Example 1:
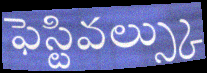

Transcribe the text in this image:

ఫెస్టివల్స్కు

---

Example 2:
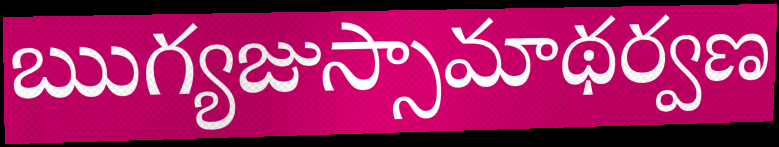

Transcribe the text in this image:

ఋగ్యజుస్సామాథర్వణ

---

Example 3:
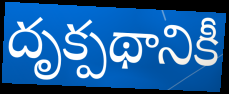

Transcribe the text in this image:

దృక్పథానికీ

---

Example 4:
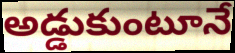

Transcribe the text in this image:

అడ్డుకుంటూనే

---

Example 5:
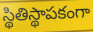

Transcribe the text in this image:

స్థితిస్థాపకంగా